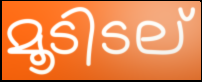
മൂടിടല്